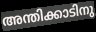
അന്തിക്കാടിനു